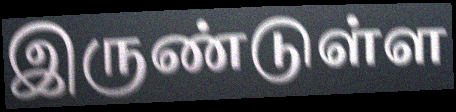
இருண்டுள்ள